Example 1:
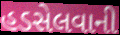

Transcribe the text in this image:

હડસેલવાની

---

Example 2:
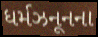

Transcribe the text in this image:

ધર્મઝનૂનના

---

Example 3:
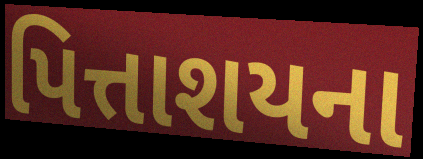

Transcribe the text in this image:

પિત્તાશયના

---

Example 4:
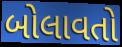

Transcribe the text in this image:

બોલાવતો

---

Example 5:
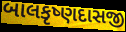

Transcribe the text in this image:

બાલકૃષ્ણદાસજી